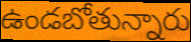
ఉండబోతున్నారు